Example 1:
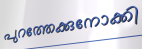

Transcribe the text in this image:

പുറത്തേക്കുനോക്കി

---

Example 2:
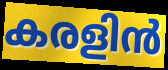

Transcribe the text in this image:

കരളിൻ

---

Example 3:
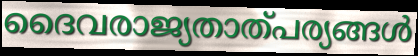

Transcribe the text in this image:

ദൈവരാജ്യതാത്പര്യങ്ങൾ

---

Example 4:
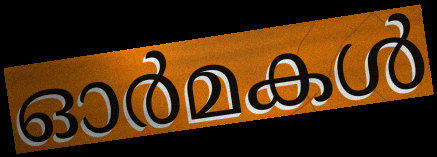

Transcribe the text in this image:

ഓർമകൾ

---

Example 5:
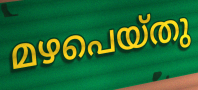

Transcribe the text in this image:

മഴപെയ്തു